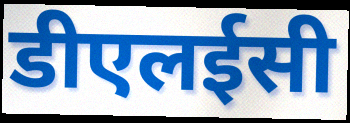
डीएलईसी